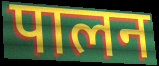
पालन